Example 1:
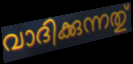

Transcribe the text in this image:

വാദിക്കുന്നതു്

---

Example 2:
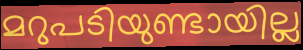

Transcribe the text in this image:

മറുപടിയുണ്ടായില്ല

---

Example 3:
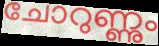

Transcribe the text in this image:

ചോറുണ്ണും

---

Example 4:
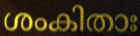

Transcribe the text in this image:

ശംകിതാഃ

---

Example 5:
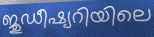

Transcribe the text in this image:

ജുഡീഷ്യറിയിലെ